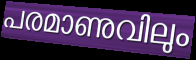
പരമാണുവിലും